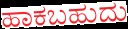
ಹಾಕಬಹುದು